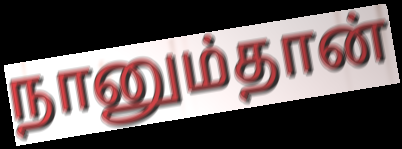
நானும்தான்